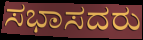
ಸಭಾಸದರು